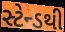
સ્ટેન્ડથી